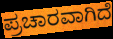
ಪ್ರಚಾರವಾಗಿದೆ